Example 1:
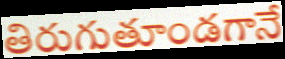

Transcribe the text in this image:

తిరుగుతూండగానే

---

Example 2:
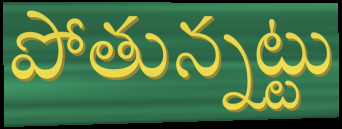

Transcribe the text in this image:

పోతున్నట్టు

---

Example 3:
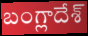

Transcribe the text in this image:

బంగ్లాదేశ్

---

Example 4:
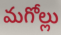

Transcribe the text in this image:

మగోల్లు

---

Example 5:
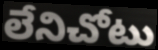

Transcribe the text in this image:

లేనిచోటు